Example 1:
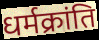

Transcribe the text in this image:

धर्मक्रांति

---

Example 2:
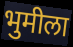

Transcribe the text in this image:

भुमीला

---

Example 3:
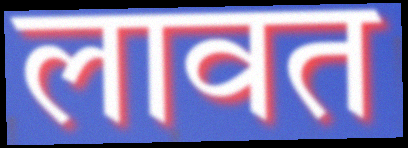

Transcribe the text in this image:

लावत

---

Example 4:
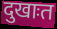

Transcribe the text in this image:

दुखाःत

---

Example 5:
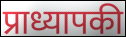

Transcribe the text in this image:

प्राध्यापकी